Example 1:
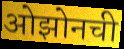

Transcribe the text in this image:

ओझोनची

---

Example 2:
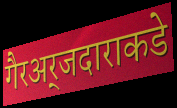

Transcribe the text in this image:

गैरअर्जदाराकडे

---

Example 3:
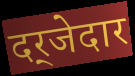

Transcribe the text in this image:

दर्जेदार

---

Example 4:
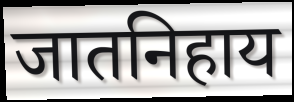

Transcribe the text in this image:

जातनिहाय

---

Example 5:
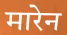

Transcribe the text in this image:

मारेन